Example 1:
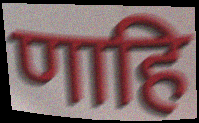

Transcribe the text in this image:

णाहि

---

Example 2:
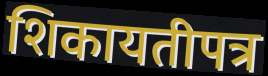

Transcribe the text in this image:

शिकायतीपत्र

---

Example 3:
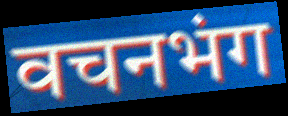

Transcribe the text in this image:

वचनभंग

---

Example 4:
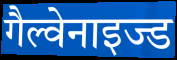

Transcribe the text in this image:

गैल्वेनाइज्ड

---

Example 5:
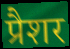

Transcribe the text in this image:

प्रैशर